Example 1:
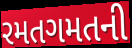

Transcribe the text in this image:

રમતગમતની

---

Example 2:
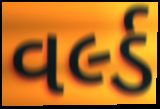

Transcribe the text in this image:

વર્લ્ડ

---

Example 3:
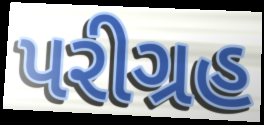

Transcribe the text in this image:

પરીગ્રહ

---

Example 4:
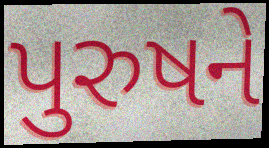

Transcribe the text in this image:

પુરુષને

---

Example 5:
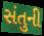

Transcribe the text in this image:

સંતુની